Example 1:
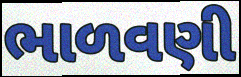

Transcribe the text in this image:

ભાળવણી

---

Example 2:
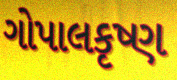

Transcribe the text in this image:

ગોપાલકૃષ્ણ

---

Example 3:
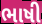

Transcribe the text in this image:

ભાષી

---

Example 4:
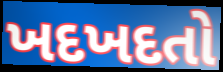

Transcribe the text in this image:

ખદખદતો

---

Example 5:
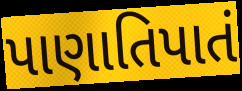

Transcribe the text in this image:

પાણાતિપાતં